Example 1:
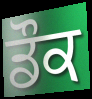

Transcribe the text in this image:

ਡੌਕ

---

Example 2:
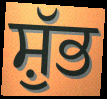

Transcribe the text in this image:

ਸ਼ੁੱਭ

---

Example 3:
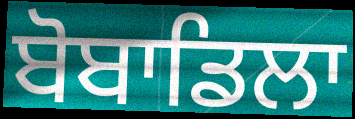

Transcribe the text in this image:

ਬੋਬਾਡਿਲਾ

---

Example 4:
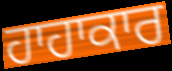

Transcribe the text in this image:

ਹਾਹਾਕਾਰ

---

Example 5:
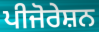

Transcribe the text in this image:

ਪੀਜੋਰੇਸ਼ਨ